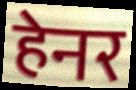
हेनर